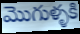
మొగుళ్ళకి